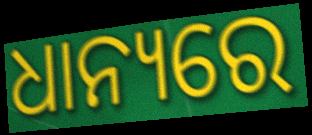
ଧାନ୍ୟରେ